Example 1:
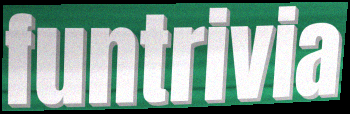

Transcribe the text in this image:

funtrivia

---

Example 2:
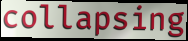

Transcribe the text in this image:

collapsing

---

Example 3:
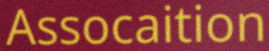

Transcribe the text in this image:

Assocaition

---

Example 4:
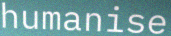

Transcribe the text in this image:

humanise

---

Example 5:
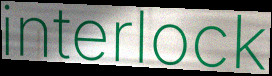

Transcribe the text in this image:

interlock